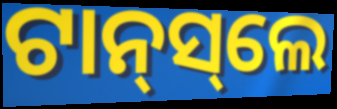
ଟାନ୍‌ସ୍‌ଲେ